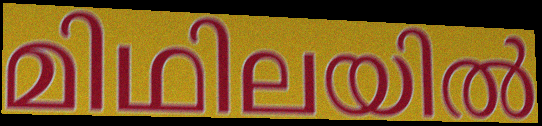
മിഥിലയിൽ